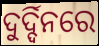
ଦୁର୍ଦ୍ଦିନରେ